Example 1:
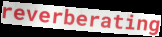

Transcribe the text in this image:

reverberating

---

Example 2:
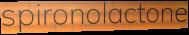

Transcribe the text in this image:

spironolactone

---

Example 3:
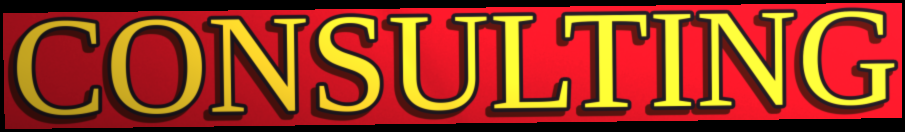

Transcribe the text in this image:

CONSULTING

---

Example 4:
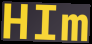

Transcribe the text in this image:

HIm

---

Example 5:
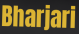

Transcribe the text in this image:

Bharjari